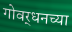
गोवर्धनच्या